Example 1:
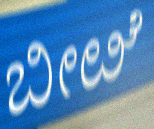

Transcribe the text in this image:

ಬೀೞೆ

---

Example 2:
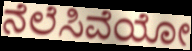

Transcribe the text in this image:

ನೆಲೆಸಿವೆಯೋ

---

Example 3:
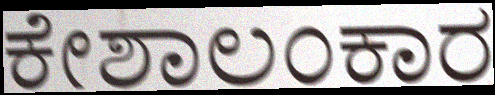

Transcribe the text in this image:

ಕೇಶಾಲಂಕಾರ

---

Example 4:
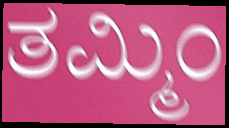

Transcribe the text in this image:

ತಮ್ಮಿಂ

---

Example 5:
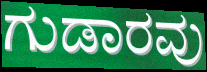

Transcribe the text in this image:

ಗುಡಾರವು